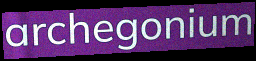
archegonium